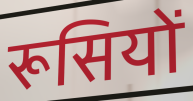
रूसियों